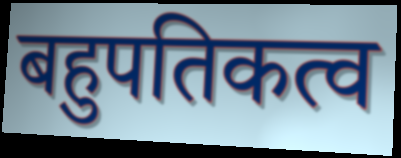
बहुपतिकत्व